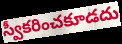
స్వీకరించకూడదు